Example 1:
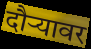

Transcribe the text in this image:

दौऱ्यावर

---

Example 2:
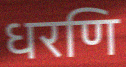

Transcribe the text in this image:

धरणि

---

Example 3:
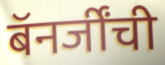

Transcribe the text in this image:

बॅनर्जींची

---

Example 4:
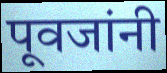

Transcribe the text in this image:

पूवजांनी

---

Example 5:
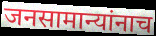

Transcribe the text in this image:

जनसामान्यांनाच